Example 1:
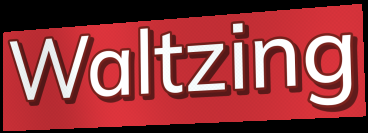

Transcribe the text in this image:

Waltzing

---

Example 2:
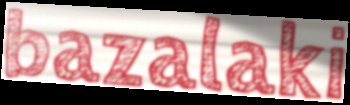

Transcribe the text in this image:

bazalaki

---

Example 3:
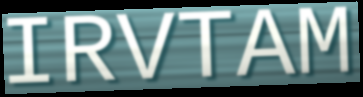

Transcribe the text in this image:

IRVTAM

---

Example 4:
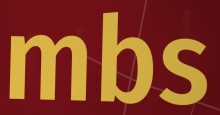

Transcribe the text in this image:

mbs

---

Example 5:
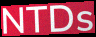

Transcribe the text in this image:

NTDs